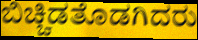
ಬಿಚ್ಚಿಡತೊಡಗಿದರು